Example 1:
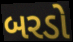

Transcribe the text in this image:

બરડો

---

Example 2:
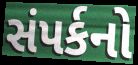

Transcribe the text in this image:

સંપર્કનો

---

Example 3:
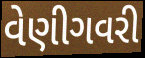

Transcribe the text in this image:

વેણીગવરી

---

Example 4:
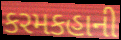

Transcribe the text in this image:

કરમકહાની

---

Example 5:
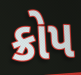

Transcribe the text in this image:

ક્રોપ